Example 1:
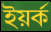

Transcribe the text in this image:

ইয়ৰ্ক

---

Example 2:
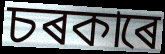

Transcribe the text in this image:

চৰকাৰে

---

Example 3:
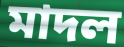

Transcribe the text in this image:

মাদল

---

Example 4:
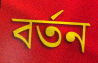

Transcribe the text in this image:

বৰ্তন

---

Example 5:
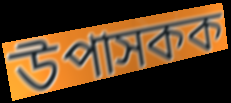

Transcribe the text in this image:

উপাসকক